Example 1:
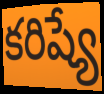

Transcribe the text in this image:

కరిష్యే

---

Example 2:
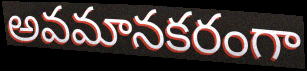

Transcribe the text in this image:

అవమానకరంగా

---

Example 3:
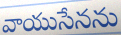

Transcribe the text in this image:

వాయుసేనను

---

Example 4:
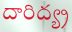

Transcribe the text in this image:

దారిద్య్ర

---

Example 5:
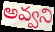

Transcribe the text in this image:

అవ్వని